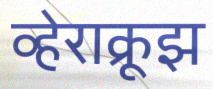
व्हेराक्रूझ